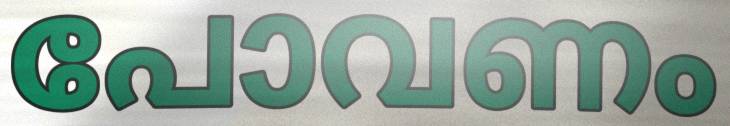
പോവണം